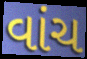
વાંચ